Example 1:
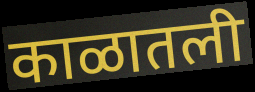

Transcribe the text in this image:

काळातली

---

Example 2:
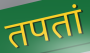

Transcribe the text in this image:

तपतां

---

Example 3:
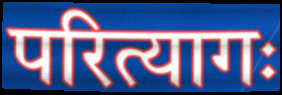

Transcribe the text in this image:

परित्यागः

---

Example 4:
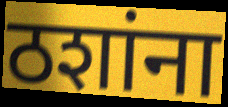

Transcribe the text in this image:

ठशांना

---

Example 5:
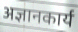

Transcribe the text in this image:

अज्ञानकार्य